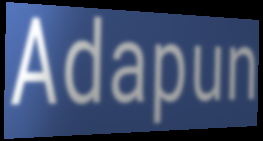
Adapun